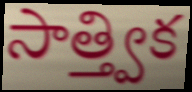
సాత్త్విక